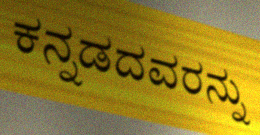
ಕನ್ನಡದವರನ್ನು